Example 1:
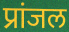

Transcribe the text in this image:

प्रांजल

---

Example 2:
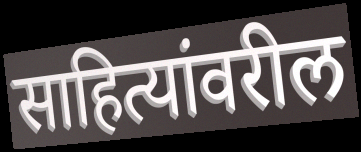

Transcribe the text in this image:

साहित्यांवरील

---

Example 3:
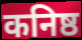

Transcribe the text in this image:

कनिष्ठ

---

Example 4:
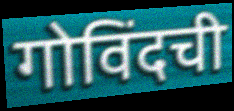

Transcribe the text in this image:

गोविंदची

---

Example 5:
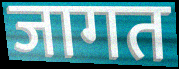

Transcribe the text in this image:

जागत